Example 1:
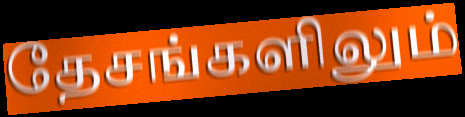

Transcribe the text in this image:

தேசங்களிலும்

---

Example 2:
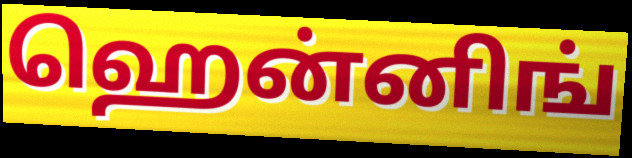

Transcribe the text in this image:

ஹென்னிங்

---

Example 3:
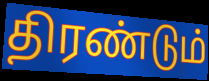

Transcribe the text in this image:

திரண்டும்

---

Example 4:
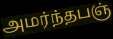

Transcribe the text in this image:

அமர்ந்தபஞ்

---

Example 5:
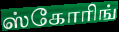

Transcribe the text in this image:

ஸ்கோரிங்